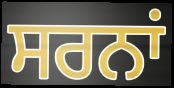
ਸਰਨਾਂ